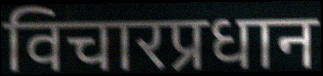
विचारप्रधान